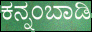
ಕನ್ನಂಬಾಡಿ